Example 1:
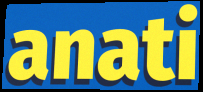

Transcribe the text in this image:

anati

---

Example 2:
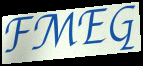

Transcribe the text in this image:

FMEG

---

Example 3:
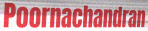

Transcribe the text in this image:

Poornachandran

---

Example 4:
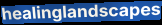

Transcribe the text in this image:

healinglandscapes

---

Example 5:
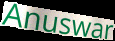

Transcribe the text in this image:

Anuswar